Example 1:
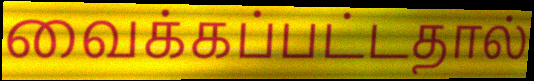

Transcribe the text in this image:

வைக்கப்பட்டதால்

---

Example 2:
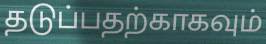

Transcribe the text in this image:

தடுப்பதற்காகவும்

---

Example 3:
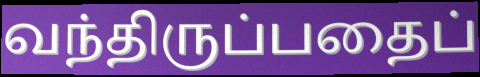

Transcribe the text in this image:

வந்திருப்பதைப்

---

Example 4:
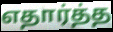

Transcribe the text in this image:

எதார்த்த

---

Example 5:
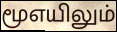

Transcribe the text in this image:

மூஎயிலும்